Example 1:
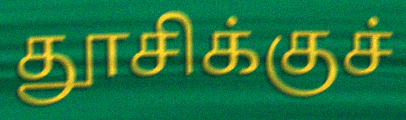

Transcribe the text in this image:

தூசிக்குச்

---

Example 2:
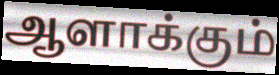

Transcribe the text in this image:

ஆளாக்கும்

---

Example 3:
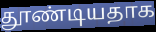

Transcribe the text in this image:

தூண்டியதாக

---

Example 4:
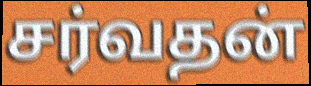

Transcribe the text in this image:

சர்வதன்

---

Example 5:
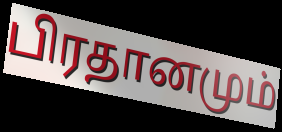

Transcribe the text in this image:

பிரதானமும்